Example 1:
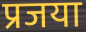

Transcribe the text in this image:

प्रजया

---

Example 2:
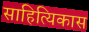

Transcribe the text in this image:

साहित्यिकास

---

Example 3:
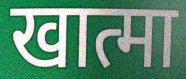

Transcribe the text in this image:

खात्मा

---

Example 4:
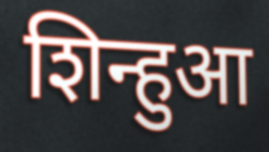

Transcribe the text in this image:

शिन्हुआ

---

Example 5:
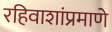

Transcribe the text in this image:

रहिवाशांप्रमाणे